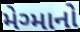
મેગ્માનો